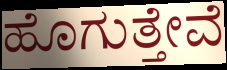
ಹೊಗುತ್ತೇವೆ